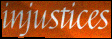
injustices